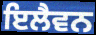
ਇਲੈਵਨ